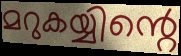
മറുകയ്യിന്റെ